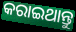
କରାଇଥାନ୍ତୁ